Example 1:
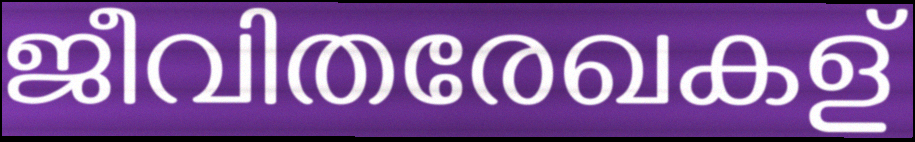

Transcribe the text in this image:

ജീവിതരേഖകള്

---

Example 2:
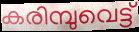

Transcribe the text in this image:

കരിമ്പുവെട്ട്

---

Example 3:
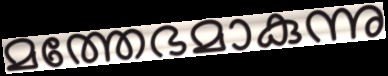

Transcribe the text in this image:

മത്തേഭമാകുന്നു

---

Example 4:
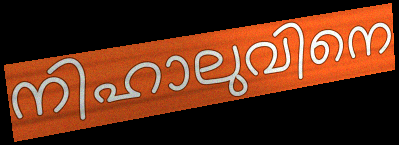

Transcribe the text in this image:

നിഹാലുവിനെ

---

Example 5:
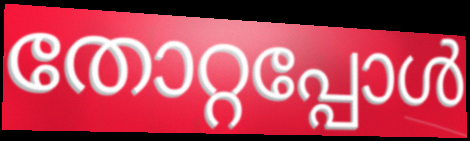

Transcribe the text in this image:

തോറ്റപ്പോൾ